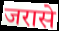
जरासे